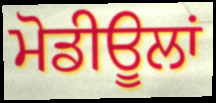
ਮੋਡੀਊਲਾਂ